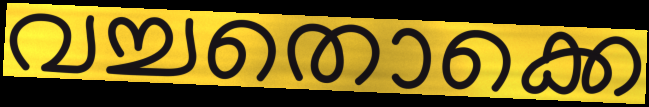
വച്ചതൊക്കെ